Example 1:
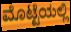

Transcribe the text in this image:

ಮೊಟ್ಟೆಯಲ್ಲಿ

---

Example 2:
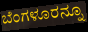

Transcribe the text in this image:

ಬೆಂಗಳೂರನ್ನೂ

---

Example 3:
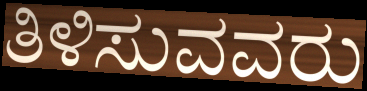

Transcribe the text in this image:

ತಿಳಿಸುವವರು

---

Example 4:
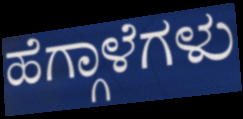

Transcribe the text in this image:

ಹೆಗ್ಗಾಳೆಗಳು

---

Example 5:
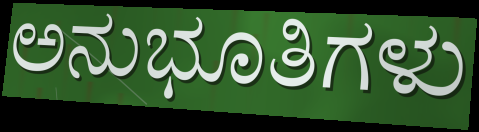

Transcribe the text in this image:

ಅನುಭೂತಿಗಳು